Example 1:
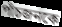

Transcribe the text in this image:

পাঁচজনকে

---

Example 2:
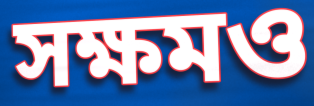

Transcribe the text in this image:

সক্ষমও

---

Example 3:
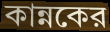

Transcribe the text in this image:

কান্নকের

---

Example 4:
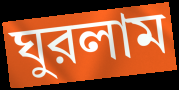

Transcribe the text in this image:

ঘুরলাম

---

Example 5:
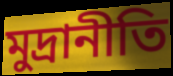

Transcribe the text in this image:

মুদ্রানীতি